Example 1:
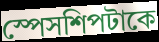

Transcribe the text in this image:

স্পেসশিপটাকে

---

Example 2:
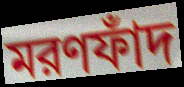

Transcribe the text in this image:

মরণফাঁদ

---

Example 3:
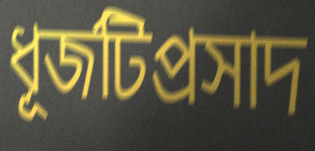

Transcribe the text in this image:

ধূর্জটিপ্রসাদ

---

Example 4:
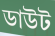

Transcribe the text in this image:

ডাউট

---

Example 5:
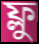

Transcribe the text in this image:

ফ্লু